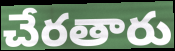
చేరతారు